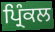
ਪ੍ਰਿੰਕਲ